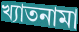
খ্যাতনামা